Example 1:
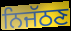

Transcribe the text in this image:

ਨਿਜੱਠਣ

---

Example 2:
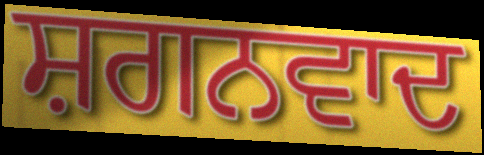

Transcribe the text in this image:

ਸ਼ਗਨਵਾਦ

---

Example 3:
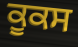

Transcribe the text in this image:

ਕੂਕਸ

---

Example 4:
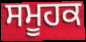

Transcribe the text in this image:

ਸਮੂਹਕ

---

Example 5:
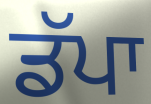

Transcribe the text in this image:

ਡੱਪਾ